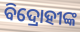
ବିଦ୍ରୋହୀଙ୍କ